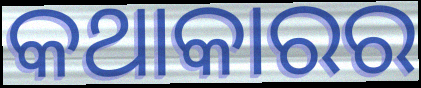
କଥାକାରର